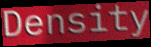
Density